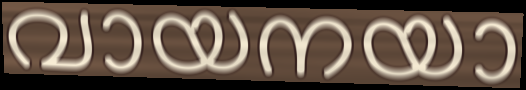
വായനയാ